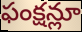
ఫంక్షన్లూ